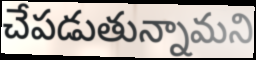
చేపడుతున్నామని